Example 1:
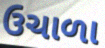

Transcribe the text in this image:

ઉચાળા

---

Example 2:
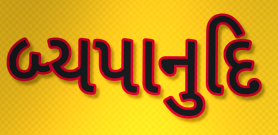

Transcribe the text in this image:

બ્યપાનુદિ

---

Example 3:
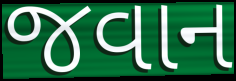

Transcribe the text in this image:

જવાન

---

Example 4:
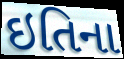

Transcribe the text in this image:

ઇતિના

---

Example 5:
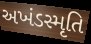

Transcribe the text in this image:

અખંડસ્મૃતિ